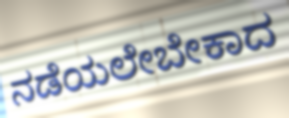
ನಡೆಯಲೇಬೇಕಾದ